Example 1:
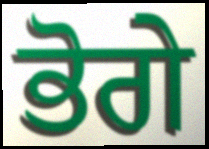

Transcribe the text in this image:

ਭੋਗੇ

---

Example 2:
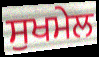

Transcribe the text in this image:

ਸੁਖਮੇਲ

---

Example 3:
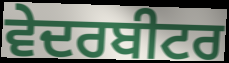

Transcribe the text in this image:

ਵੇਦਰਬੀਟਰ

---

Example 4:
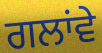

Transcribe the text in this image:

ਗਲਾਂਵੇ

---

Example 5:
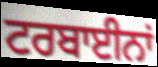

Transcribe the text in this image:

ਟਰਬਾਈਨਾਂ